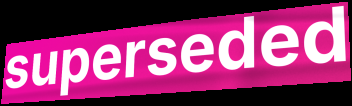
superseded